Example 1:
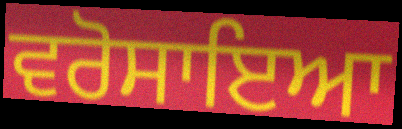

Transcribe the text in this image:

ਵਰੋਸਾਇਆ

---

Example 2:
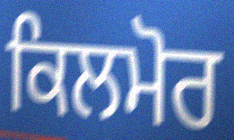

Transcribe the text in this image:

ਕਿਲਮੋਰ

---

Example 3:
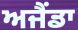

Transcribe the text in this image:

ਅਜੈਂਡਾ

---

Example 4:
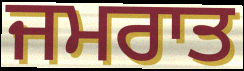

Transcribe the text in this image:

ਜਮਰਾਤ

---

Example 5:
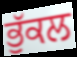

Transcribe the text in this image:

ਭੁੱਕਲ